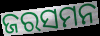
ଜରସମନ